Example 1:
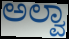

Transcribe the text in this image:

ಅಲ್ವಾ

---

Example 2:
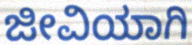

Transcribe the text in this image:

ಜೀವಿಯಾಗಿ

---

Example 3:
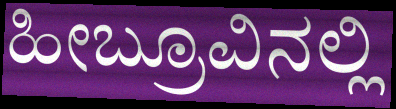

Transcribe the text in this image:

ಹೀಬ್ರೂವಿನಲ್ಲಿ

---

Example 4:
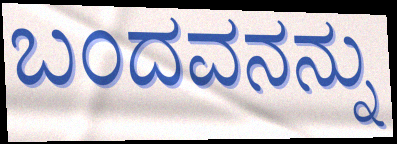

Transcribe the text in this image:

ಬಂದವನನ್ನು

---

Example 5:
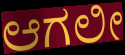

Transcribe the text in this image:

ಆಗಲೀ